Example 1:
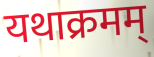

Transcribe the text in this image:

यथाक्रमम्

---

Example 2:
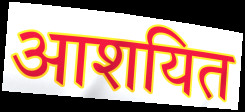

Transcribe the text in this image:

आशयित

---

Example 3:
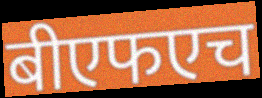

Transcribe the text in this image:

बीएफएच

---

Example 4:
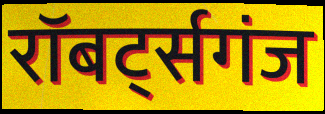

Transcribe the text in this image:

रॉबर्ट्सगंज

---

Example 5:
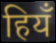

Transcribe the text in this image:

हियँ